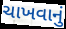
ચાખવાનું